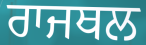
ਰਾਜਥਲ